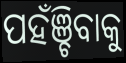
ପହଁଞ୍ଚିବାକୁ